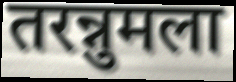
तरन्नुमला